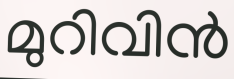
മുറിവിൻ